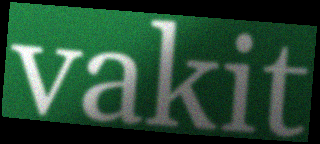
vakit